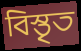
বিস্তৃত